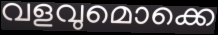
വളവുമൊക്കെ